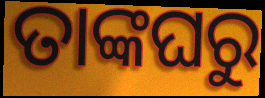
ତାଙ୍କଘରୁ